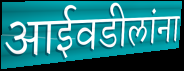
आईवडीलांना